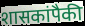
शासकांपैकी